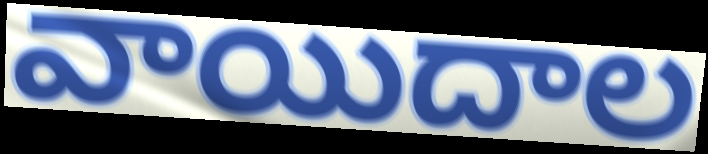
వాయిదాల